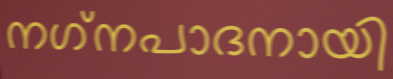
നഗ്‌നപാദനായി